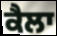
ਕੈਲਾ